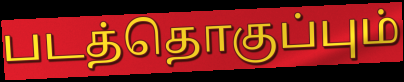
படத்தொகுப்பும்